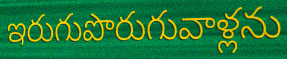
ఇరుగుపొరుగువాళ్లను